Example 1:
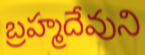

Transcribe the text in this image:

బ్రహ్మదేవుని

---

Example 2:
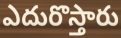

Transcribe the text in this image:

ఎదురొస్తారు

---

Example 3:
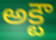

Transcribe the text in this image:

అక్టౌ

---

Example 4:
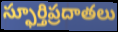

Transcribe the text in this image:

స్ఫూర్తిప్రదాతలు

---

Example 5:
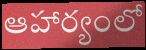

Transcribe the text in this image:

ఆహార్యంలో